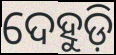
ଦେହୁଡ଼ି